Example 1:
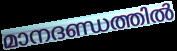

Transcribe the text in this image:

മാനദണ്ഡത്തിൽ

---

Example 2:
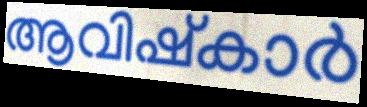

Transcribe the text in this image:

ആവിഷ്കാർ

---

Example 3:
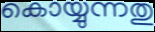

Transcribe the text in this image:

കൊയ്യുന്നതു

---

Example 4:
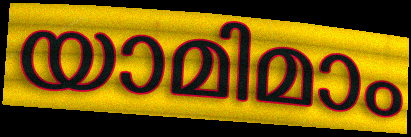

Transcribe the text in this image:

യാമിമാം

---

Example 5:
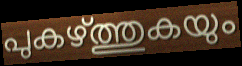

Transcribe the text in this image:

പുകഴ്ത്തുകയും